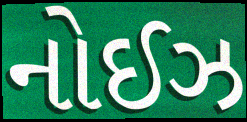
નોઈઝ